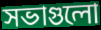
সভাগুলো